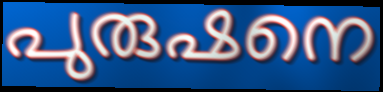
പുരുഷനെ